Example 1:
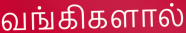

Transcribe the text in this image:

வங்கிகளால்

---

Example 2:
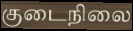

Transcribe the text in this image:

குடைநிலை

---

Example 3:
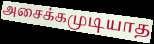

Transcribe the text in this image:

அசைக்கமுடியாத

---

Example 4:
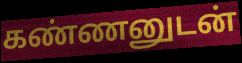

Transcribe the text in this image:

கண்ணனுடன்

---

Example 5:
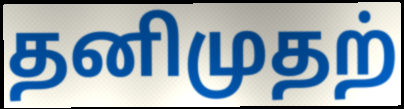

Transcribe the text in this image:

தனிமுதற்